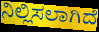
ನಿಲ್ಲಿಸಲಾಗಿದೆ